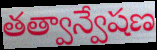
తత్వాన్వేషణ